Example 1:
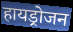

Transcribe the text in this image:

हायड्रोजन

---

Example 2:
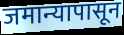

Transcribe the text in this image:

जमान्यापासून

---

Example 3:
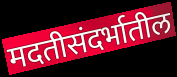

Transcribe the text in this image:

मदतीसंदर्भातील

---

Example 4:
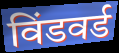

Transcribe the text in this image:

विंडवर्ड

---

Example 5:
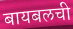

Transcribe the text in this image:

बायबलची